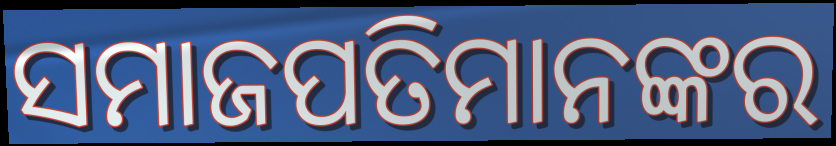
ସମାଜପତିମାନଙ୍କର